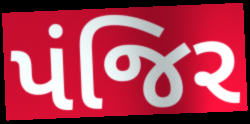
પંજિર